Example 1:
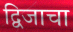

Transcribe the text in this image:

द्विजाचा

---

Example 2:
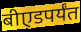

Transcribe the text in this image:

बीएडपर्यंत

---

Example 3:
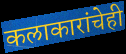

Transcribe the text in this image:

कलाकारांचेही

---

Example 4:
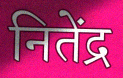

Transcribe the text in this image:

नितेंद्र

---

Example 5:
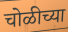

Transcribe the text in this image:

चोळीच्या